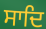
ਸਾਦਿ